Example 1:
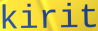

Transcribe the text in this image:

kirit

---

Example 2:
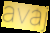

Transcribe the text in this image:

avaj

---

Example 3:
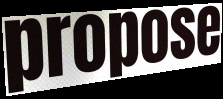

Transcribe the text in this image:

propose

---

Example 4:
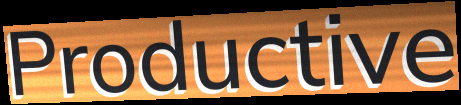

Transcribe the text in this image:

Productive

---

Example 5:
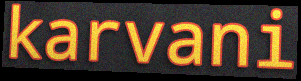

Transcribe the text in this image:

karvani